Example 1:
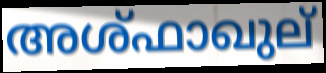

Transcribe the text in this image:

അശ്ഫാഖുല്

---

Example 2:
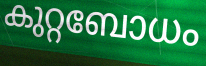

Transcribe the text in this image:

കുറ്റബോധം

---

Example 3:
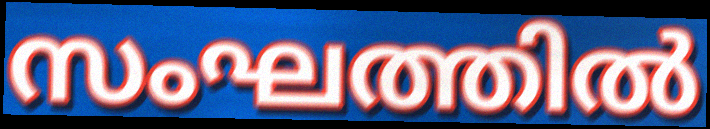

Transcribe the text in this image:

സംഘത്തിൽ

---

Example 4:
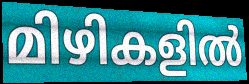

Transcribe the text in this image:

മിഴികളിൽ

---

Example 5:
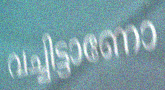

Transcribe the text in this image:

വച്ചിട്ടാണോ